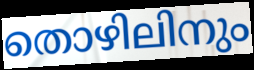
തൊഴിലിനും